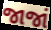
જાજાં